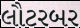
લૌટરબર